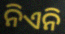
ନିଏନି